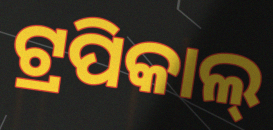
ଟ୍ରପିକାଲ୍